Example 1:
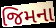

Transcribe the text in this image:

જિમના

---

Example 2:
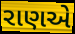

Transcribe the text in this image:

રાણએ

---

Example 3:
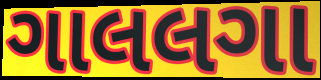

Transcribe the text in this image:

ગાલલગા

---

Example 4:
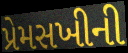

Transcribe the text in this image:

પ્રેમસખીની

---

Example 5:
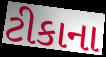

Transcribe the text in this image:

ટીકાના